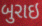
બુરાઇ